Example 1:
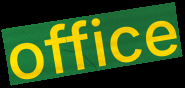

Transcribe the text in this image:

office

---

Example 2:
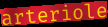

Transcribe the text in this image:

arteriole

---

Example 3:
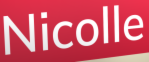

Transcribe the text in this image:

Nicolle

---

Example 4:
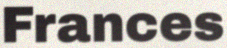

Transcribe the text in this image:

Frances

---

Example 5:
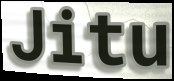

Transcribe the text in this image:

Jitu